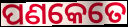
ପଣକେତେ